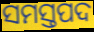
ସମସ୍ତପଦ